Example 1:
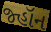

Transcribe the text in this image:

જ્હૉન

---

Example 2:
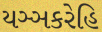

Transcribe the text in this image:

યઞ્ઞકરેહિ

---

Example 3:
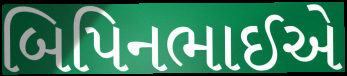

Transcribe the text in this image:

બિપિનભાઈએ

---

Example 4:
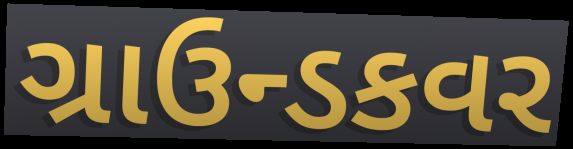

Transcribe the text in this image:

ગ્રાઉન્ડકવર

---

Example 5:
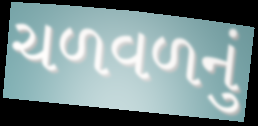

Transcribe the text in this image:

ચળવળનું